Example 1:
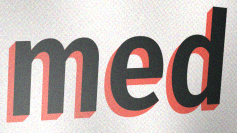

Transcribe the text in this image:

med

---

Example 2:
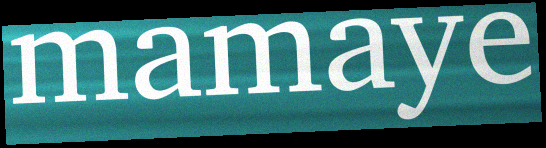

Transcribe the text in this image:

mamaye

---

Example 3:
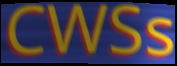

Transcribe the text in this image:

CWSs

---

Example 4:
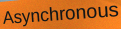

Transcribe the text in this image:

Asynchronous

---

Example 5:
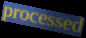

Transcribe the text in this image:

processed